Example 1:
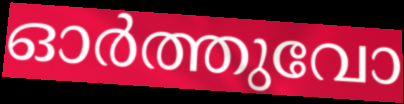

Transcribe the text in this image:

ഓർത്തുവോ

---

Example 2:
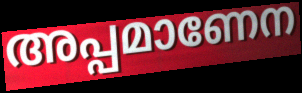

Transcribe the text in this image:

അപ്പമാണേന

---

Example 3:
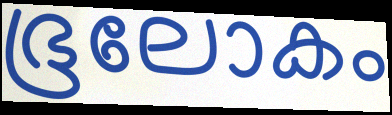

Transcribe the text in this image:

ഭൂലോകം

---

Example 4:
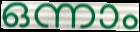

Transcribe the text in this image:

ഒന്നാം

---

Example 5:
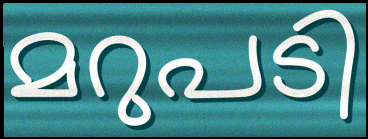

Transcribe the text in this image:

മറുപടി